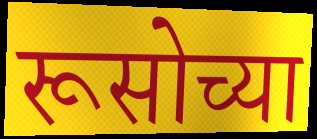
रूसोच्या